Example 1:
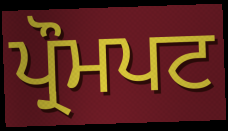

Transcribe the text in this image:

ਪ੍ਰੌਮਪਟ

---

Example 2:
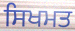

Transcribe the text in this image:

ਸਿਖਮਤ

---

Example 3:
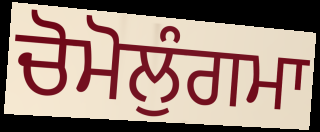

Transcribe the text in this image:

ਚੋਮੋਲੁੰਗਮਾ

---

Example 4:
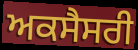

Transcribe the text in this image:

ਅਕਸੈਸਰੀ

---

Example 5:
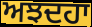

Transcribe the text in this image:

ਅਝਦਹਾ